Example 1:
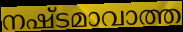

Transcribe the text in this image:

നഷ്ടമാവാത്ത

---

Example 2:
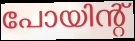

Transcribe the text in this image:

പോയിന്റ്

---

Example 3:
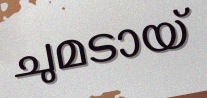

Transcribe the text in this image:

ചുമടായ്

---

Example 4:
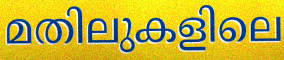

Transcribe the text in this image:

മതിലുകളിലെ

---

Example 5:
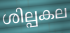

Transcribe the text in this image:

ശില്പകല